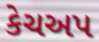
કેચઅપ